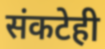
संकटेही